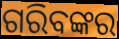
ଗରିବଙ୍କର